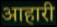
आहारी